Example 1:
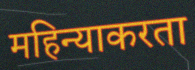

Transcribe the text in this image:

महिन्याकरता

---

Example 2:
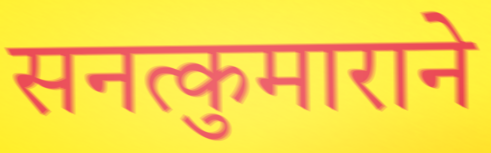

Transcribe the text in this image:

सनत्कुमाराने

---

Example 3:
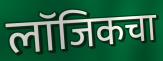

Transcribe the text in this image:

लॉजिकचा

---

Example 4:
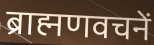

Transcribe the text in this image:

ब्राह्मणवचनें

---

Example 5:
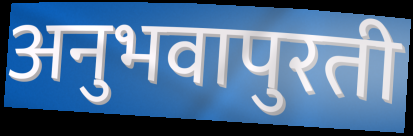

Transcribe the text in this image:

अनुभवापुरती